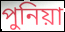
পুনিয়া